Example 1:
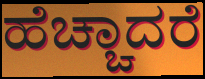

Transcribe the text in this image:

ಹೆಚ್ಚಾದರೆ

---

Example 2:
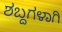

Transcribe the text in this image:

ಶಬ್ದಗಳಾಗಿ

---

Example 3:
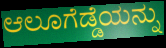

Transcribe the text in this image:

ಆಲೂಗೆಡ್ಡೆಯನ್ನು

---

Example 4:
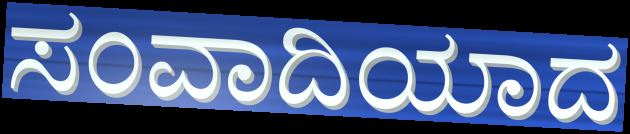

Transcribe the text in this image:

ಸಂವಾದಿಯಾದ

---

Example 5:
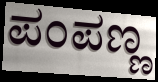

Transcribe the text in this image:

ಪಂಪಣ್ಣ